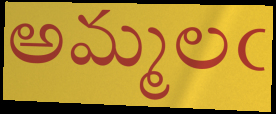
అమ్మలఁ